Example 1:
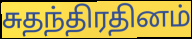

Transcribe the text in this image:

சுதந்திரதினம்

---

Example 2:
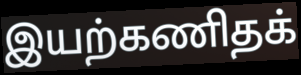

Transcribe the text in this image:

இயற்கணிதக்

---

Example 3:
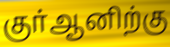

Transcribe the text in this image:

குர்ஆனிற்கு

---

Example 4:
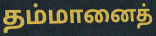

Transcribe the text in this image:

தம்மானைத்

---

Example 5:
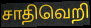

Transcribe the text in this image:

சாதிவெறி